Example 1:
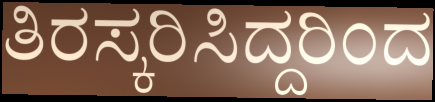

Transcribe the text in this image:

ತಿರಸ್ಕರಿಸಿದ್ದರಿಂದ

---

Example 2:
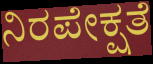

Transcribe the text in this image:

ನಿರಪೇಕ್ಷತೆ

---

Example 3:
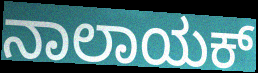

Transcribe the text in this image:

ನಾಲಾಯಕ್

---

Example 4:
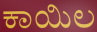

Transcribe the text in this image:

ಕಾಯಿಲ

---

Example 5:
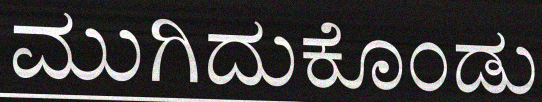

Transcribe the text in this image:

ಮುಗಿದುಕೊಂಡು